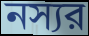
নস্যর